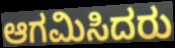
ಆಗಮಿಸಿದರು